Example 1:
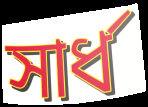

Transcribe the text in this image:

সার্ধ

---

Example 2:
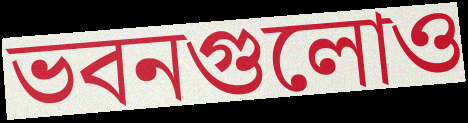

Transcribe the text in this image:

ভবনগুলোও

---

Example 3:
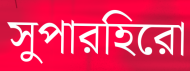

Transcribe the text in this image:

সুপারহিরো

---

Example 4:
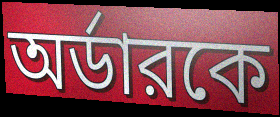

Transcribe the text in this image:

অর্ডারকে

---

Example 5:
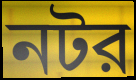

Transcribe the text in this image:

নটর